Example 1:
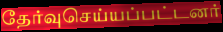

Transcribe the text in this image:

தேர்வுசெய்யப்பட்டனர்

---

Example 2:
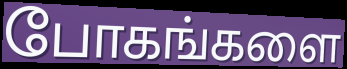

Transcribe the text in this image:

போகங்களை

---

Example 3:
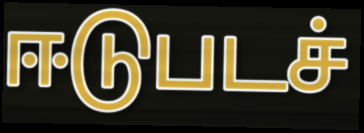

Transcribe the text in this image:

ஈடுபடச்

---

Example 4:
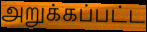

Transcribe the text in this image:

அறுக்கப்பட்ட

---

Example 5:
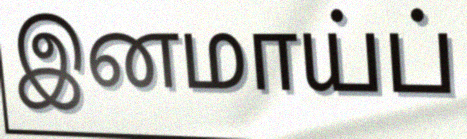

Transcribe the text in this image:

இனமாய்ப்